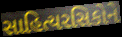
સાહિત્યરસિકોને